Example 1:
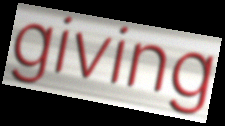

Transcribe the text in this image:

giving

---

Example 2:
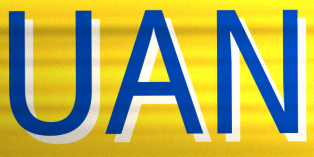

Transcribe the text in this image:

UAN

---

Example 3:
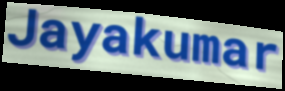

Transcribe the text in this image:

Jayakumar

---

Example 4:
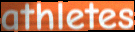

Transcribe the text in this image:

athletes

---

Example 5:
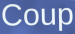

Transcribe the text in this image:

Coup